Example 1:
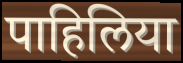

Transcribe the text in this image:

पाहिलिया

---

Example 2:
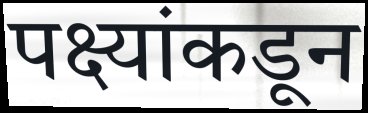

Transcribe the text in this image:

पक्ष्यांकडून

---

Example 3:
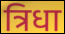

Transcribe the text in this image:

त्रिधा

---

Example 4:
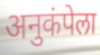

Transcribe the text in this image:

अनुकंपेला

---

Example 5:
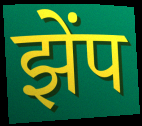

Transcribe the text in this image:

झेंप